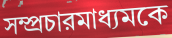
সম্প্রচারমাধ্যমকে